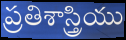
ప్రతిశాస్త్రియు